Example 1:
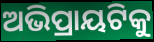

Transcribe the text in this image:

ଅଭିପ୍ରାୟଟିକୁ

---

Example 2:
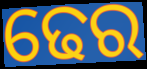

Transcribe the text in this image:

ଢେର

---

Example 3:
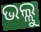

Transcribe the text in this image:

ଭଲ୍ଲୁ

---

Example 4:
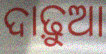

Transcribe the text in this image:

ଦାଢ଼ୁଆ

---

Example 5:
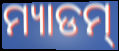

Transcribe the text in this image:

ମ୍ୟାଡମ୍